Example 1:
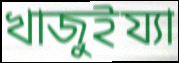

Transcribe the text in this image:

খাজুইয্যা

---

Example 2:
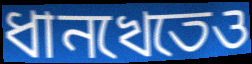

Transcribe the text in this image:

ধানখেতেও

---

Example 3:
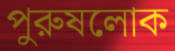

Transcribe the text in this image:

পুরুষলোক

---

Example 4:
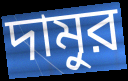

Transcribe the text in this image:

দামুর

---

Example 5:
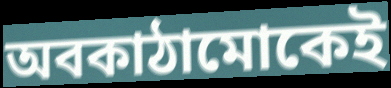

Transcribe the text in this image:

অবকাঠামোকেই